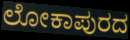
ಲೋಕಾಪುರದ